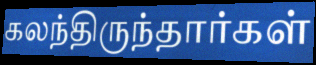
கலந்திருந்தார்கள்